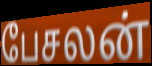
பேசலன்